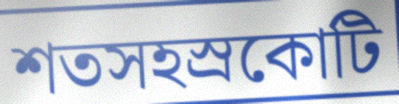
শতসহস্রকোটি